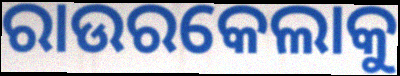
ରାଉରକେଲାକୁ